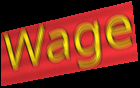
Wage